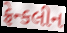
ફ્રેન્કલીન